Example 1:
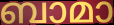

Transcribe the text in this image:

ബാമാ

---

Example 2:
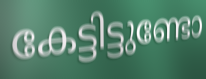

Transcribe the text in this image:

കേട്ടിട്ടുണ്ടോ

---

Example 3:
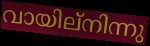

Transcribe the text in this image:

വായില്നിന്നു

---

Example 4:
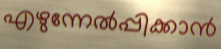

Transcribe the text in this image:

എഴുന്നേൽപ്പിക്കാൻ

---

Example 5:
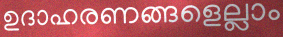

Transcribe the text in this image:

ഉദാഹരണങ്ങളെല്ലാം